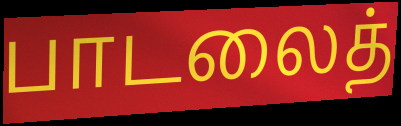
பாடலைத்